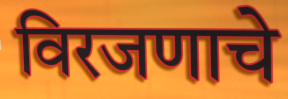
विरजणाचे